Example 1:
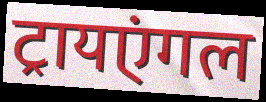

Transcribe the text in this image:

ट्रायएंगल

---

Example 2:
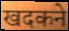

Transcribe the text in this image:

खदकने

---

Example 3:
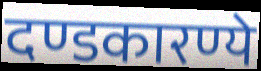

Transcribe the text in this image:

दण्डकारण्ये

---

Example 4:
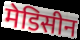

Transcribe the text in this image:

मेडिसीन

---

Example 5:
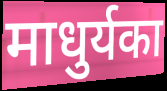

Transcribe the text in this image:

माधुर्यका